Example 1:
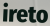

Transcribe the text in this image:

ireto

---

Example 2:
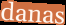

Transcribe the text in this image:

danas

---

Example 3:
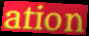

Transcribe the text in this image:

ation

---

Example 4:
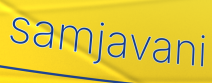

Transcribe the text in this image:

samjavani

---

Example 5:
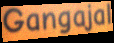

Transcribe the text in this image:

Gangajal